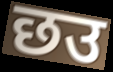
छउ